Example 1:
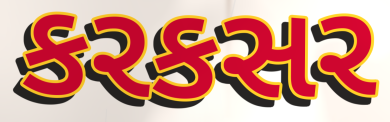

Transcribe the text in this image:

કરકસર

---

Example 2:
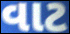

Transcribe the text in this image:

વાટ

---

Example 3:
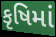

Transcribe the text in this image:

કૃષિમાં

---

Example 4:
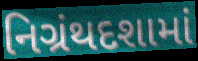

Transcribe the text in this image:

નિગ્રંથદશામાં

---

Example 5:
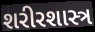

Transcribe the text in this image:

શરીરશાસ્ત્ર